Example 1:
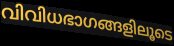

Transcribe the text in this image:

വിവിധഭാഗങ്ങളിലൂടെ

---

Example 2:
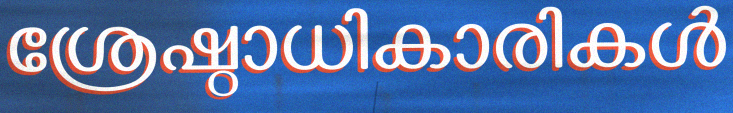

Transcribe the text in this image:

ശ്രേഷ്ഠാധികാരികൾ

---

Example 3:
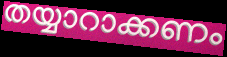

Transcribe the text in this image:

തയ്യാറാക്കണം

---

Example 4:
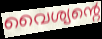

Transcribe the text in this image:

വൈശ്യന്റെ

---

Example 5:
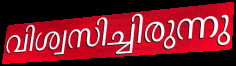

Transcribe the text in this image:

വിശ്വസിച്ചിരുന്നു